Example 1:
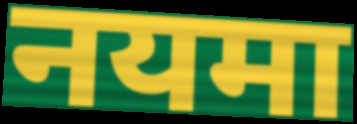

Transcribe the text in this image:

नयमा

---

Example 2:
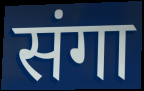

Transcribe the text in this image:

संगा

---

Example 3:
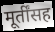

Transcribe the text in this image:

मूर्तींसह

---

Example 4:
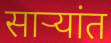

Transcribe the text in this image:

साऱ्यांत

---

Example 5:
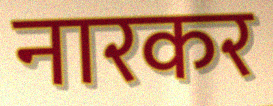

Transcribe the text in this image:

नारकर